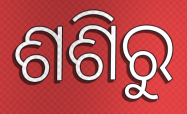
ଶଶିରୁ